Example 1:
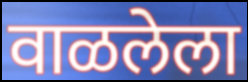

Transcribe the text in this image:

वाळलेला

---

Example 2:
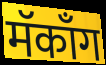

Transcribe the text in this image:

मॅकाँग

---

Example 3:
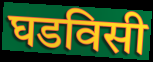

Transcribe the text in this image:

घडविसी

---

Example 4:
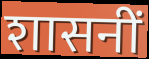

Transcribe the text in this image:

शासनीं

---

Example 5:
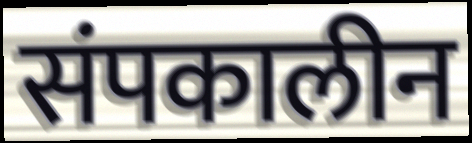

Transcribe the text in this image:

संपकालीन